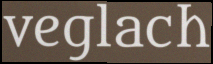
veglach